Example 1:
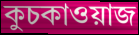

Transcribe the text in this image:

কুচকাওয়াজ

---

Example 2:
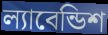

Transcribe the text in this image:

ল্যাবেন্ডিশ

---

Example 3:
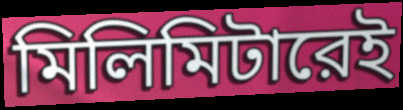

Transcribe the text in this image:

মিলিমিটারেই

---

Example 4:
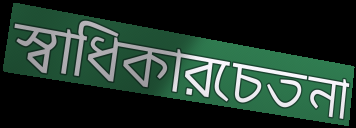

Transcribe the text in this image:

স্বাধিকারচেতনা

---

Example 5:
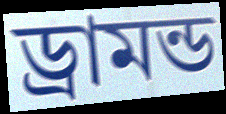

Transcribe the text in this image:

ড্রামন্ড